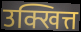
उक्खित्त